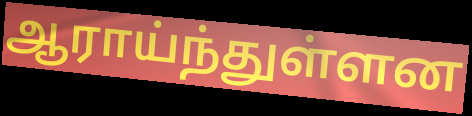
ஆராய்ந்துள்ளன